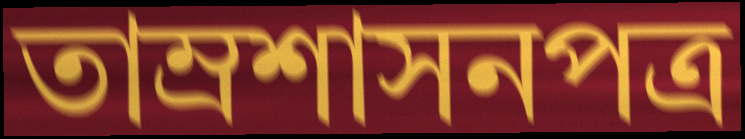
তাম্রশাসনপত্র